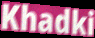
Khadki